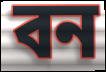
বন